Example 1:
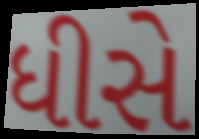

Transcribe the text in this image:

ધીસે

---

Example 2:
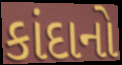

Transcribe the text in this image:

કાંદાનો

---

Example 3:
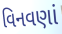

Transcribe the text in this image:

વિનવણાં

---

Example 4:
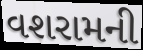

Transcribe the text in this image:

વશરામની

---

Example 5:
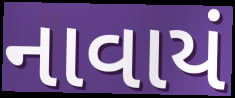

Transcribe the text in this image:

નાવાયં